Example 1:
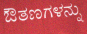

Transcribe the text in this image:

ಔತಣಗಳನ್ನು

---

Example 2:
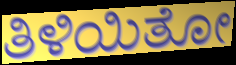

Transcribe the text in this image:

ತಿಳಿಯಿತೋ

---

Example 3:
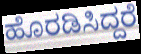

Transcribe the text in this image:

ಹೊರಡಿಸಿದ್ದರೆ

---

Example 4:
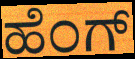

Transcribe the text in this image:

ಹೆಂಗ್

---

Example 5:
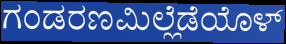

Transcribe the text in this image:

ಗಂಡರಣಮಿಲ್ಲೆಡೆಯೊಳ್